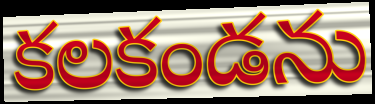
కలకండను